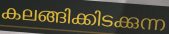
കലങ്ങിക്കിടക്കുന്ന